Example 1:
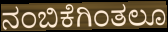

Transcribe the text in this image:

ನಂಬಿಕೆಗಿಂತಲೂ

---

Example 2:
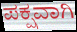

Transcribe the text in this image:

ಪಕ್ಷವಾಗಿ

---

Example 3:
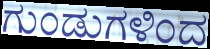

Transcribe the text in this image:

ಗುಂಡುಗಳಿಂದ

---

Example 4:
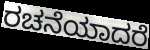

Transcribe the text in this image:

ರಚನೆಯಾದರೆ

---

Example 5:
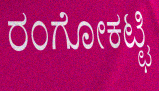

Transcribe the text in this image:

ರಂಗೋಕಟ್ಟಿ